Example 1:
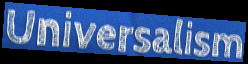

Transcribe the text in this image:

Universalism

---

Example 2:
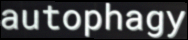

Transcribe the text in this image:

autophagy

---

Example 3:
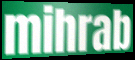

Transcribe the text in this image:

mihrab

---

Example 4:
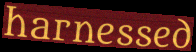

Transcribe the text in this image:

harnessed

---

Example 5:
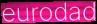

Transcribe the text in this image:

eurodad